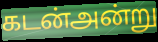
கடன்அன்று